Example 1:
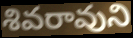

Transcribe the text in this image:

శివరావుని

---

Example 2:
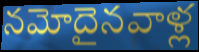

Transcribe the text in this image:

నమోదైనవాళ్ల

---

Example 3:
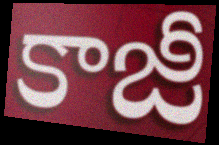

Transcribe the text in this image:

కాజీ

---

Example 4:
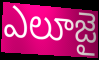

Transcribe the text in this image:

ఎలూజై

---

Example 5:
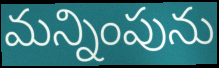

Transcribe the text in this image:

మన్నింపును